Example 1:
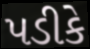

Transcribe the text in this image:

પડીકે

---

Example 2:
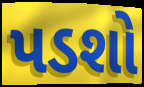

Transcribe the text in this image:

પડશો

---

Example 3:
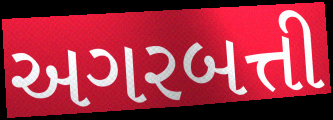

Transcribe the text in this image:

અગરબત્તી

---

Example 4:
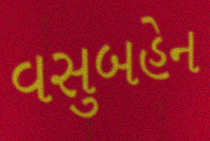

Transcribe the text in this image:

વસુબહેન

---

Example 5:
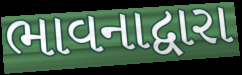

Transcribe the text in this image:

ભાવનાદ્વારા